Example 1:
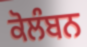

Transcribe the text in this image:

ਕੋਲੰਬਨ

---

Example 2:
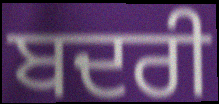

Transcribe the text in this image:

ਬਦਰੀ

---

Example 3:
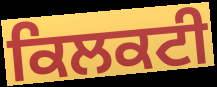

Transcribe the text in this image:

ਕਿਲਕਟੀ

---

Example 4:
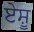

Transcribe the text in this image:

ਏਸ਼ੂ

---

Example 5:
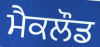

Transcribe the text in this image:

ਮੈਕਲੌਡ